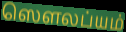
ஸௌலப்யம்